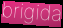
brigida